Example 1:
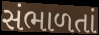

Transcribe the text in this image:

સંભાળતાં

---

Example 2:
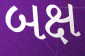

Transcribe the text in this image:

બક્ષ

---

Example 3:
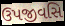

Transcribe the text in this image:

ઉપજીવસિ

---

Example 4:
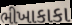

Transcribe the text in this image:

ભીખાકાકા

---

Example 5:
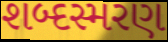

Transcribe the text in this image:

શબ્દસ્મરણ